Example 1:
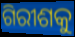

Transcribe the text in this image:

ଗିରୀଶକୁ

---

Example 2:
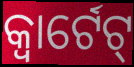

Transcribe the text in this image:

କ୍ୱାର୍ଟେଟ୍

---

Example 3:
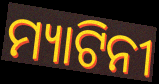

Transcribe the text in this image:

ମ୍ୟାଟିନୀ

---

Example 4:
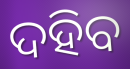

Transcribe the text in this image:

ଦହିବ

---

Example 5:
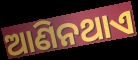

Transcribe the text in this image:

ଆଣିନଥାଏ